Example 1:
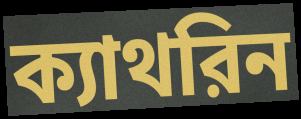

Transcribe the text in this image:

ক্যাথরিন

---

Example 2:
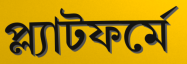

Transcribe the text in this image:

প্ল্যাটফর্মে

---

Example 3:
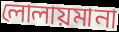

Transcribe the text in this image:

লোলায়মানা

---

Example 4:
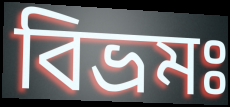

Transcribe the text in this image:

বিভ্রমঃ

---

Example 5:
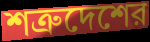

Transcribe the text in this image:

শত্রুদেশের